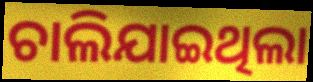
ଚାଲିଯାଇଥିଲା